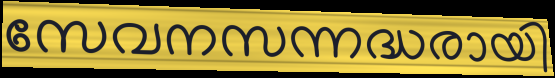
സേവനസന്നദ്ധരായി